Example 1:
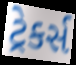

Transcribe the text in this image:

ટ્રેકર્સ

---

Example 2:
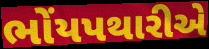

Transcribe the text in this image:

ભોંયપથારીએ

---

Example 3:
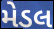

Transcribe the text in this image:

મેડલ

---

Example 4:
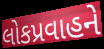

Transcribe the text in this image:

લોકપ્રવાહને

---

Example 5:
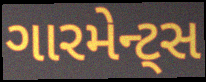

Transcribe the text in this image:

ગારમેન્ટ્સ